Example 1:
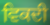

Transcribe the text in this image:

ਵਿਕਦੀ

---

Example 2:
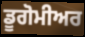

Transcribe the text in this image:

ਡੂਗੋਮੀਅਰ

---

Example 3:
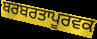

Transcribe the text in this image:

ਬਰਬਰਤਾਪੂਰਵਕ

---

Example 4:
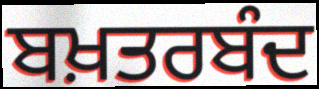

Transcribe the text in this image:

ਬਖ਼ਤਰਬੰਦ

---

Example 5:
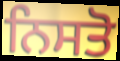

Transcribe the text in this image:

ਨਿਸਤੋ